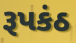
રૂપકંઠ